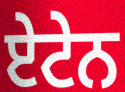
ਏਟੇਨ